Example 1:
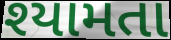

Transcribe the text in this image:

શ્યામતા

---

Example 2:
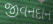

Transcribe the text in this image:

જીવનદાન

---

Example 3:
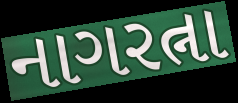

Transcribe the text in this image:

નાગરત્ના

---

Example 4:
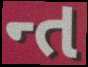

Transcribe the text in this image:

ન્ત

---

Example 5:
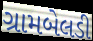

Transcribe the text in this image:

ગ્રામબેલડી